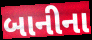
બાનીના